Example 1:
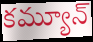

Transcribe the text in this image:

కమ్యూన్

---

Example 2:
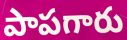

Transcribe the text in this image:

పాపగారు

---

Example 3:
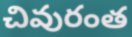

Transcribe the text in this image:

చివురంత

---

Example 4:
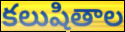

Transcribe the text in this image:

కలుషితాల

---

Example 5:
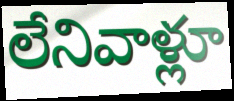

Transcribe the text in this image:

లేనివాళ్లూ